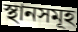
স্থানসমূহ